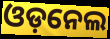
ଓଡ଼ନେଲ